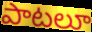
పాటలూ